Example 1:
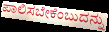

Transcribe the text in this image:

ಪಾಲಿಸಬೇಕೆಂಬುದನ್ನು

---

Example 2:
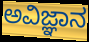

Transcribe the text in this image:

ಅವಿಜ್ಞಾನ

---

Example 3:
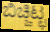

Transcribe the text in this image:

ಬಿಚ್ಚಿಟ್ಟ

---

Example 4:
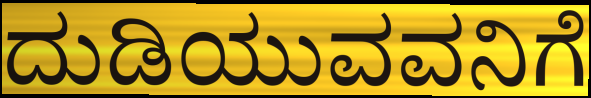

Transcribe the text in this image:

ದುಡಿಯುವವನಿಗೆ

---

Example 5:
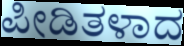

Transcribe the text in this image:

ಪೀಡಿತಳಾದ